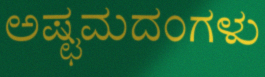
ಅಷ್ಟಮದಂಗಳು